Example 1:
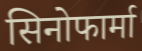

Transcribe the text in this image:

सिनोफार्मा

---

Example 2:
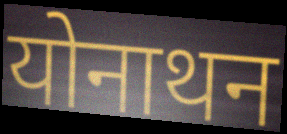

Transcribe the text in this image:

योनाथन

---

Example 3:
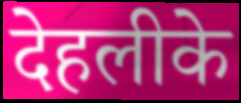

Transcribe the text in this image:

देहलीके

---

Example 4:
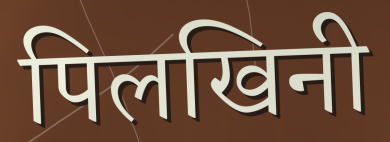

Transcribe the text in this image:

पिलखिनी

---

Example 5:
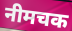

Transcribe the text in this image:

नीमचक